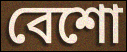
বেশো